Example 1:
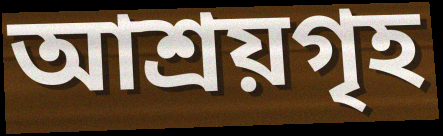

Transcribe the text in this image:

আশ্ৰয়গৃহ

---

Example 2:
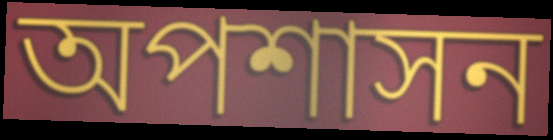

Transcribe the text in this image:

অপশাসন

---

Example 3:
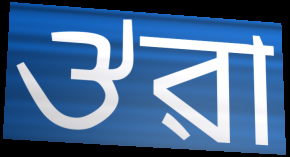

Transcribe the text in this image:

ঔৱা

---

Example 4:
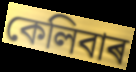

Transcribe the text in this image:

কেলিবাৰ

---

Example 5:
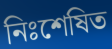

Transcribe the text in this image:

নিঃশেষিত